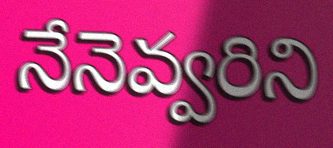
నేనెవ్వరిని